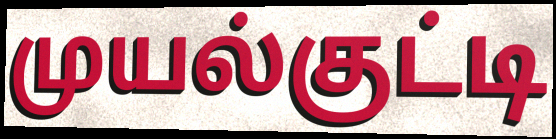
முயல்குட்டி